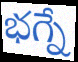
భగ్నే